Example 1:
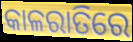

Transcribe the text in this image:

କାଳରାତିରେ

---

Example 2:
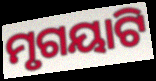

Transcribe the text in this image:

ମୃଗୟାଟି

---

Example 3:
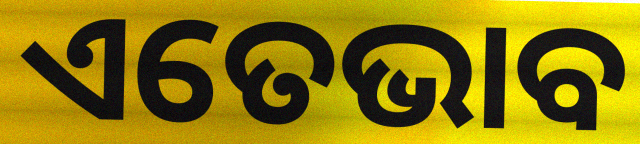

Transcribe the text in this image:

ଏତେଭାବ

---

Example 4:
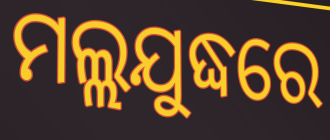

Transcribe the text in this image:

ମଲ୍ଲଯୁଦ୍ଧରେ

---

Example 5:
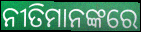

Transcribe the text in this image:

ନୀତିମାନଙ୍କରେ